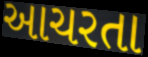
આચરતા